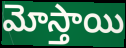
మోస్తాయి